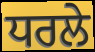
ਧਰਲੇ